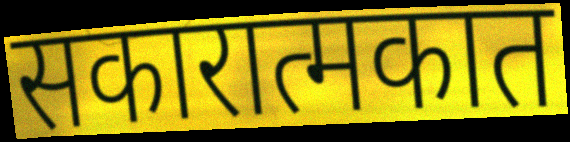
सकारात्मकात